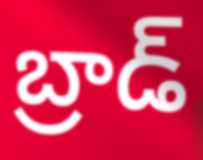
బ్రాడ్